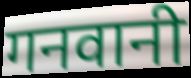
गनवानी